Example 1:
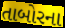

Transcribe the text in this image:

તાબોરના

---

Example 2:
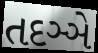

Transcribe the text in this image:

તદઞ્ઞે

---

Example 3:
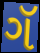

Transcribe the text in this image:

ગૅ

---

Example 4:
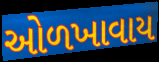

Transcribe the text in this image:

ઓળખાવાય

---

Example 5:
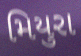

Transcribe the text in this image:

મિયુરા